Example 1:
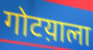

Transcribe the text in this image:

गोटय़ाला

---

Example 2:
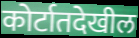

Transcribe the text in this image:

कोर्टातदेखील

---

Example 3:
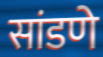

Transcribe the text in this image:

सांडणे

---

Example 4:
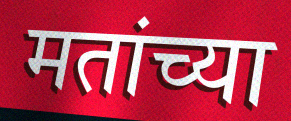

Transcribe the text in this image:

मतांच्या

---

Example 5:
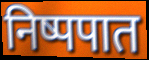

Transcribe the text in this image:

निष्पपात